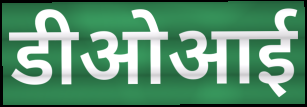
डीओआई